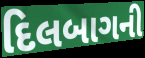
દિલબાગની